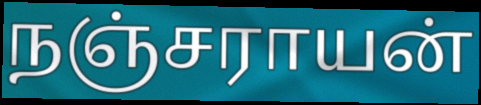
நஞ்சராயன்